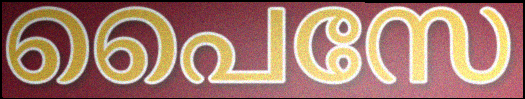
പൈസേ